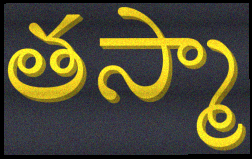
తస్మా